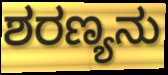
ಶರಣ್ಯನು